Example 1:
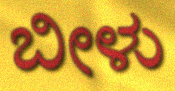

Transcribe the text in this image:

ಬೀಳು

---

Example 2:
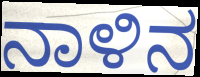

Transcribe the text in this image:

ನಾಳಿನ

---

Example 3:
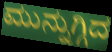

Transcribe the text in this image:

ಮುನ್ನುಗ್ಗಿದ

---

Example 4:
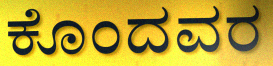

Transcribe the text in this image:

ಕೊಂದವರ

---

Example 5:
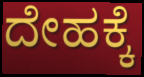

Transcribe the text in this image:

ದೇಹಕ್ಕೆ